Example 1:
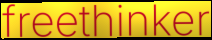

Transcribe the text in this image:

freethinker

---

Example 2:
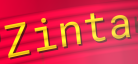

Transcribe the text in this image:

Zinta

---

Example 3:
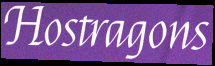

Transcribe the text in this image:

Hostragons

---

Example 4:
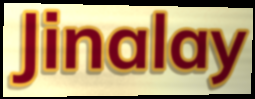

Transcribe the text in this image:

Jinalay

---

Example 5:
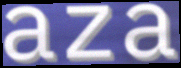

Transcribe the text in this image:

aza